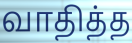
வாதித்த